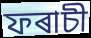
ফৰাচী